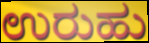
ಉರುಹು